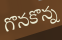
గొనకొన్న